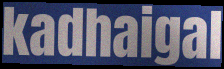
kadhaigal